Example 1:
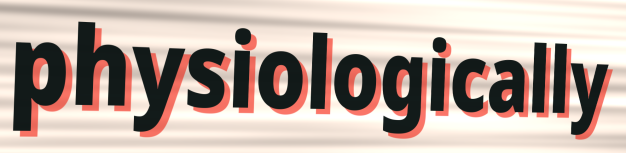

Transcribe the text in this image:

physiologically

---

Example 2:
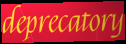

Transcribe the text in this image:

deprecatory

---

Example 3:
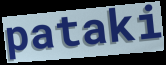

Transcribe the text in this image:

pataki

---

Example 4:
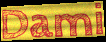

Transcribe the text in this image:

Dami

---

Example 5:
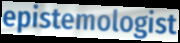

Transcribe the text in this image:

epistemologist